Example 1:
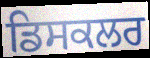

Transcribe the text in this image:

ਡਿਸਕਲਰ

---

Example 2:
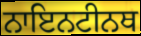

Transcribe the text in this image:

ਨਾਇਨਟੀਨਥ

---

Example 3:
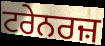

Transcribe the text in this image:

ਟਰੇਨਰਜ਼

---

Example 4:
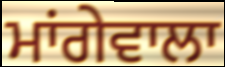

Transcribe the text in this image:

ਮਾਂਗੇਵਾਲਾ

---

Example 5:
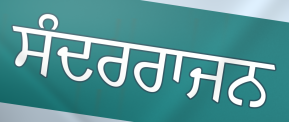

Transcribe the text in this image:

ਸੰਦਰਰਾਜਨ